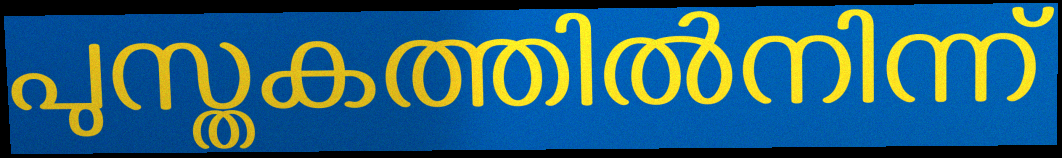
പുസ്തകത്തിൽനിന്ന്